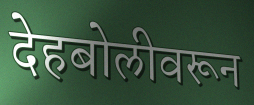
देहबोलीवरून